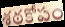
శఠకోపం